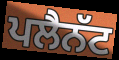
ਪਲੈਨੱਟ